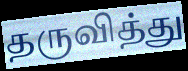
தருவித்து